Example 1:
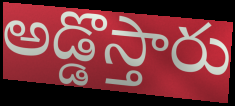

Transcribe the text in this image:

అడ్డొస్తారు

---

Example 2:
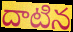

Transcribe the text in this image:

దాటిన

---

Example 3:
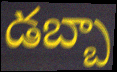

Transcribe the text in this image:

డబ్బా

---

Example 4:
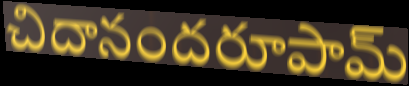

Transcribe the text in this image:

చిదానందరూపామ్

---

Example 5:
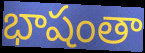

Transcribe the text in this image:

భాషంతా